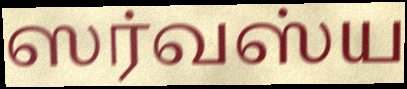
ஸர்வஸ்ய